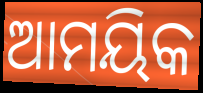
ଆମୟିକ